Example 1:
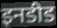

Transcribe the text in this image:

इनडीड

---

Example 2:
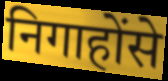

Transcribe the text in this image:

निगाहोंसे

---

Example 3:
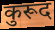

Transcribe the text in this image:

कुरूद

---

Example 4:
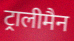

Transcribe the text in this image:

ट्रालीमैन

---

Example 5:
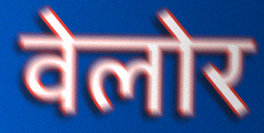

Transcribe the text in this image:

वेलोर